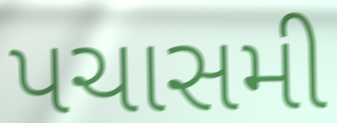
પચાસમી